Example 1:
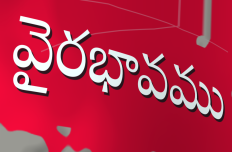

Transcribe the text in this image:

వైరభావము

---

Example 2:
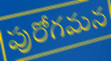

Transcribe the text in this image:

పురోగమన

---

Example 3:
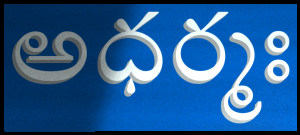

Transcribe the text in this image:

అధర్మః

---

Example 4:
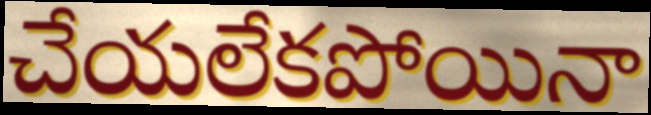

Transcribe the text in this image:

చేయలేకపోయినా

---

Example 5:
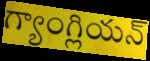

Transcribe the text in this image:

గ్యాంగ్లియన్